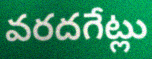
వరదగేట్లు